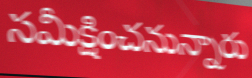
సమీక్షించనున్నారు